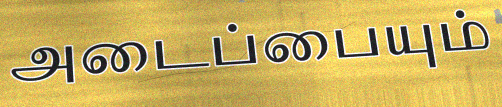
அடைப்பையும்